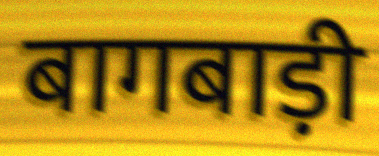
बागबाड़ी